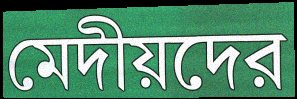
মেদীয়দের